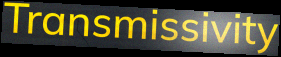
Transmissivity